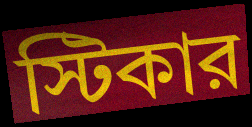
স্টিকার